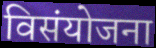
विसंयोजना